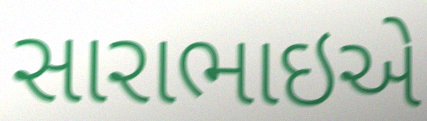
સારાભાઇએ